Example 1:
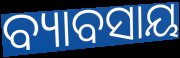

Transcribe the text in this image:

ବ୍ୟାବସାୟ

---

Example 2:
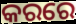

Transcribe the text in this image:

କରରେ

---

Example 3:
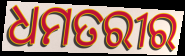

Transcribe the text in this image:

ଧମତରୀର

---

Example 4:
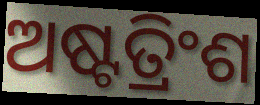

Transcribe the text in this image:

ଅଷ୍ଟତ୍ରିଂଶ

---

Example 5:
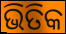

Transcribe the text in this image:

ଭିତିକ